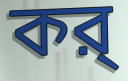
কর্